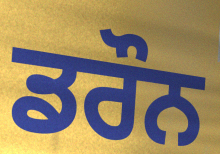
ਡਰੌਨ